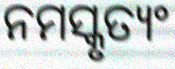
ନମସ୍କୃତ୍ୟଂ